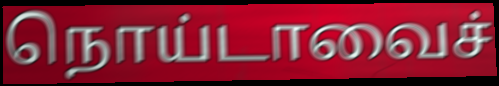
நொய்டாவைச்